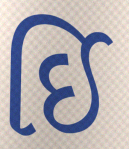
ઈિ